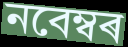
নবেম্বৰ